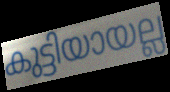
കുട്ടിയായല്ല